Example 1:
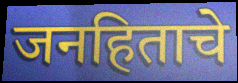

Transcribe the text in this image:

जनहिताचे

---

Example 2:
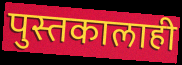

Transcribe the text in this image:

पुस्तकालाही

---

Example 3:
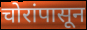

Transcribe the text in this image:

चोरांपासून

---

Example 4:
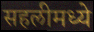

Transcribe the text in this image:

सहलीमध्ये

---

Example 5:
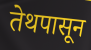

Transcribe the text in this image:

तेथपासून